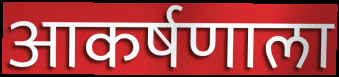
आकर्षणाला